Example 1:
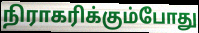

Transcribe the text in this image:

நிராகரிக்கும்போது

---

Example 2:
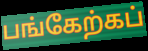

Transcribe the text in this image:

பங்கேற்கப்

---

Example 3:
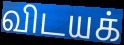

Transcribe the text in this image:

விடயக்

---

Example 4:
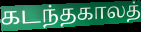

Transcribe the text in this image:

கடந்தகாலத்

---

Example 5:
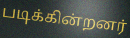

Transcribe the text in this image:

படிக்கின்றனர்